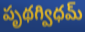
పృథగ్విధమ్